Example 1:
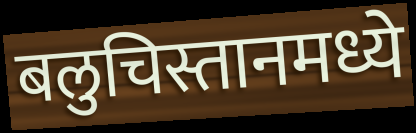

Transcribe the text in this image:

बलुचिस्तानमध्ये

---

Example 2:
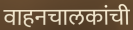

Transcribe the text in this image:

वाहनचालकांची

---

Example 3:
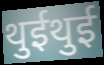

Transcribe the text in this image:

थुईथुई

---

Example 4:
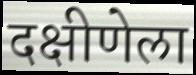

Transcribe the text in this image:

दक्षीणेला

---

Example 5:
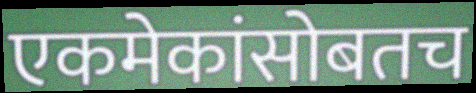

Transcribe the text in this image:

एकमेकांसोबतच